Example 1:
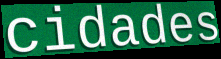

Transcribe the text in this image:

cidades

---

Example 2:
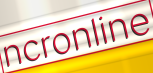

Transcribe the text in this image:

ncronline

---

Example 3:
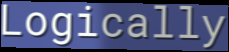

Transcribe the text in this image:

Logically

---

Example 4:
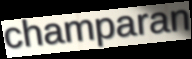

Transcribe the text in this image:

champaran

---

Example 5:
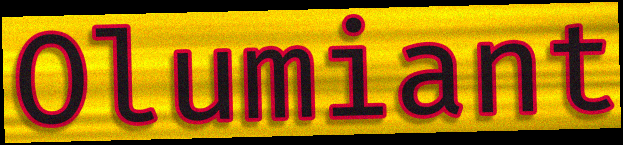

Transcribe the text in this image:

Olumiant